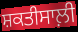
ਸ਼ਕਤੀਸਾਲ਼ੀ